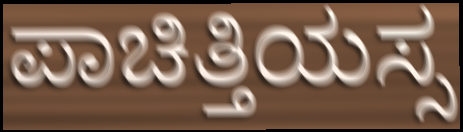
ಪಾಚಿತ್ತಿಯಸ್ಸ